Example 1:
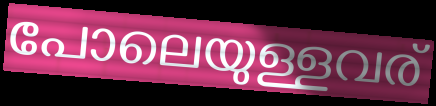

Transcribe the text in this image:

പോലെയുള്ളവര്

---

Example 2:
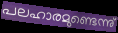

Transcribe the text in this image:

പലഹാരമുണ്ടെന്നു്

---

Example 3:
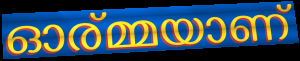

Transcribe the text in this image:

ഓര്മ്മയാണ്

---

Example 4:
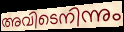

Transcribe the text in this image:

അവിടെനിന്നും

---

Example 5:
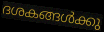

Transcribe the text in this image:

ദശകങ്ങൾക്കു